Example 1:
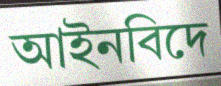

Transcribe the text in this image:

আইনবিদে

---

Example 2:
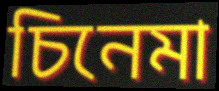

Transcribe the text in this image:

চিনেমা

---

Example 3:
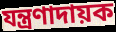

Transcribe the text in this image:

যন্ত্ৰণাদায়ক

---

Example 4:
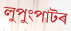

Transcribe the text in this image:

লুপুংপাটৰ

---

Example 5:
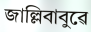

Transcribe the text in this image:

জাল্লিবাবুৱে